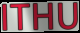
ITHU